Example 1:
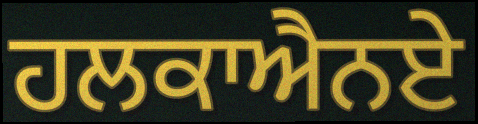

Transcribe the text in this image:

ਹਲਕਾਐਨਏ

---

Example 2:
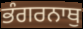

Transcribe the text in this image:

ਭੰਗਰਨਾਥੁ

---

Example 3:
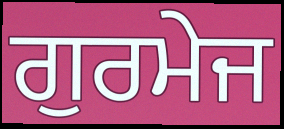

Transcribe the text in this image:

ਗੁਰਮੇਜ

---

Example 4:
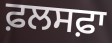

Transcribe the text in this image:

ਫ਼ਲਸਫ਼ਾ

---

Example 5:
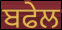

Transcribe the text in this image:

ਬਫੇਲ